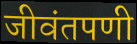
जीवंतपणी